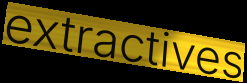
extractives